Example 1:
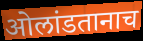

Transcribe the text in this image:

ओलांडतानाच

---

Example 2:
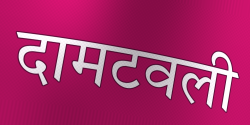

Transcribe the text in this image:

दामटवली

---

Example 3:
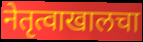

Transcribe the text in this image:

नेतृत्वाखालचा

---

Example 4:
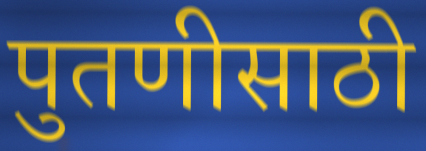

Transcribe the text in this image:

पुतणीसाठी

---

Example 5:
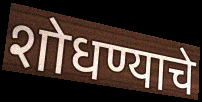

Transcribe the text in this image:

शोधण्याचे